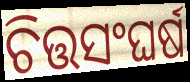
ଚିତ୍ତସଂଘର୍ଷ